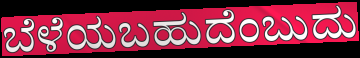
ಬೆಳೆಯಬಹುದೆಂಬುದು